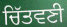
ਚਿੱਤਵਣੀ